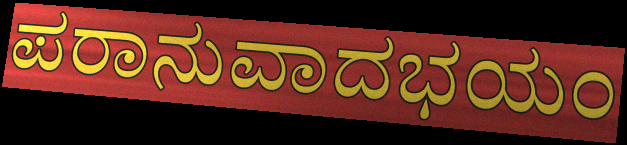
ಪರಾನುವಾದಭಯಂ